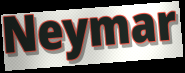
Neymar